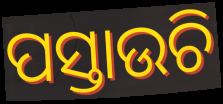
ପସ୍ତାଉଚି